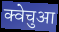
क्वेचुआ